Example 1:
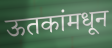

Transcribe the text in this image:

ऊतकांमधून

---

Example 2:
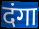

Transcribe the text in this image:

दंगा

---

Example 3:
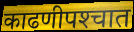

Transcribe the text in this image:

काढणीपश्‍चात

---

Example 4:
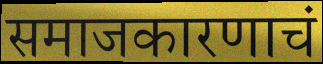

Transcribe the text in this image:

समाजकारणाचं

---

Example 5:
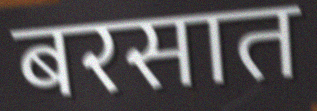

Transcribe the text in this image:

बरसात